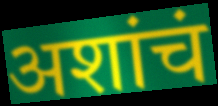
अशांचं